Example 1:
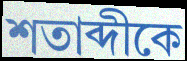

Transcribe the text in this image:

শতাব্দীকে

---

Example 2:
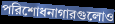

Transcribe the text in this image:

পরিশোধনাগারগুলোও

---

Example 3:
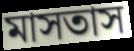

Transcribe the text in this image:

মাসতাস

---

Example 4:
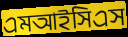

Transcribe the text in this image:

এমআইসিএস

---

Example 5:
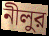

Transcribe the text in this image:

নীলুর